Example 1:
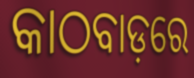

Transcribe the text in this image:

କାଠବାଡ଼ରେ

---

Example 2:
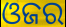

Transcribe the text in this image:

ଓଜର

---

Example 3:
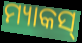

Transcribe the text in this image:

ମ୍ୟାକସ୍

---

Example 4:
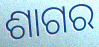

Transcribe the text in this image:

ଶାଗର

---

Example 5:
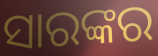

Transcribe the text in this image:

ସାରଙ୍କର